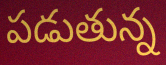
పడుతున్న